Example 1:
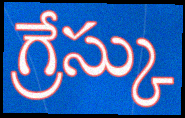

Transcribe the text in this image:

గ్రేస్కు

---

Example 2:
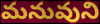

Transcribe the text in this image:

మనువుని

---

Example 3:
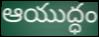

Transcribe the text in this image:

ఆయుద్ధం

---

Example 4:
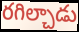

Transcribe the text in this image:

రగిల్చాడు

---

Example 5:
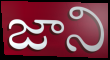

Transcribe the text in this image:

జాని